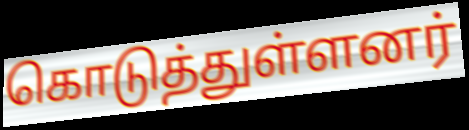
கொடுத்துள்ளனர்